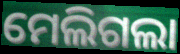
ମେଲିଗଲା